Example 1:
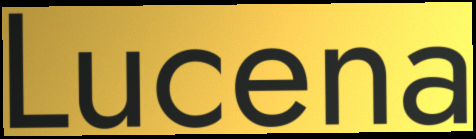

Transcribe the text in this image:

Lucena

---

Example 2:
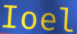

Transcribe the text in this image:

Ioel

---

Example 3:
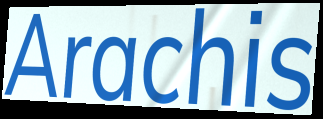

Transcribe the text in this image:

Arachis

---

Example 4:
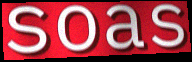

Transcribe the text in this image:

soas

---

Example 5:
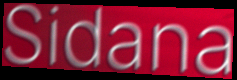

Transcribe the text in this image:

Sidana